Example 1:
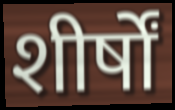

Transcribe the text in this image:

शीर्षों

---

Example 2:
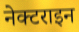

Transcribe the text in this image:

नेक्टराइन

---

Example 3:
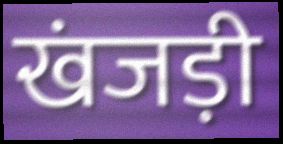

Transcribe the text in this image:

खंजड़ी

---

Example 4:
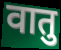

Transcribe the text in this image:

वातु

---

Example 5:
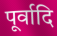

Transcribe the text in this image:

पूर्वादि